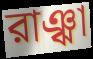
রাঞ্ঝা